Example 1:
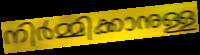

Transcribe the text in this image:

നിർമ്മിക്കാനുള്ള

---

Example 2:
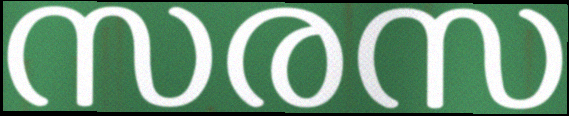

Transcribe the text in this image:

സരസ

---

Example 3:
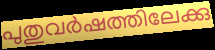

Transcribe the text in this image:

പുതുവർഷത്തിലേക്കു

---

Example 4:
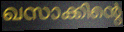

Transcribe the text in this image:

ഖസാക്കിന്റെ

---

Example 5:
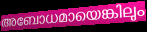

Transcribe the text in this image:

അബോധമായെങ്കിലും